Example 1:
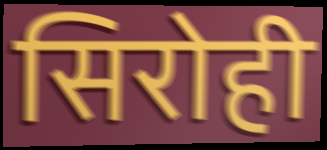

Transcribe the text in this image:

सिरोही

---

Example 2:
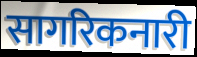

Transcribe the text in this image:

सागरिकनारी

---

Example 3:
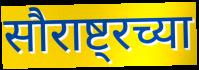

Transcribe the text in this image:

सौराष्ट्रच्या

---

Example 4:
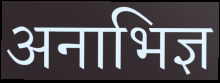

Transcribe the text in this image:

अनाभिज्ञ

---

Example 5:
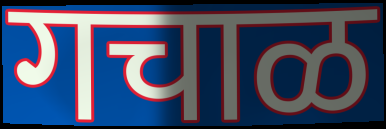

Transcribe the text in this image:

गचाळ